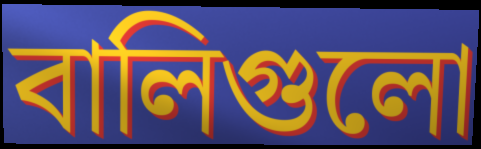
বালিগুলো